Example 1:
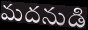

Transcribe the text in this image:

మదనుడి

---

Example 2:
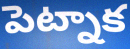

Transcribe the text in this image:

పెట్నాక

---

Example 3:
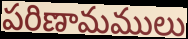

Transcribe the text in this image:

పరిణామములు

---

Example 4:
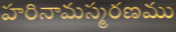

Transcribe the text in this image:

హరినామస్మరణము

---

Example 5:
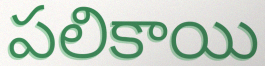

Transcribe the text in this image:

పలికాయి